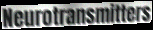
Neurotransmitters